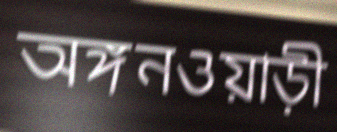
অঙ্গনওয়াড়ী